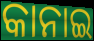
କାନାଇ